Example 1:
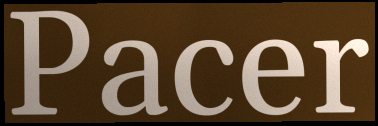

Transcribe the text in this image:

Pacer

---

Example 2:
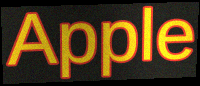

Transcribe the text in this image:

Apple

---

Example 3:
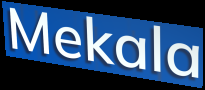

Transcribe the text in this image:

Mekala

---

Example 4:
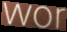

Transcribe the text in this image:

wor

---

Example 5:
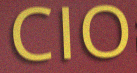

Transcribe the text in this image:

CIO